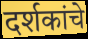
दर्शकांचे